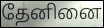
தேனினை